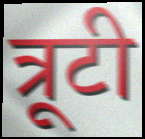
त्रूटी